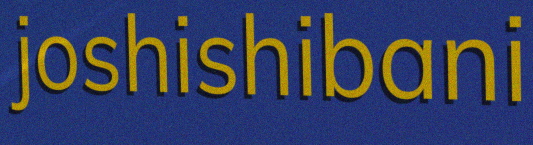
joshishibani